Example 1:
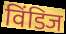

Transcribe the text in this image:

विंडिज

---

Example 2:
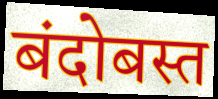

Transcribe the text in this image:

बंदोबस्त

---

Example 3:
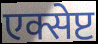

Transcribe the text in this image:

एक्सेप्ट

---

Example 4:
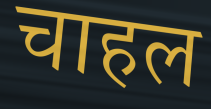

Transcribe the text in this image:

चाहल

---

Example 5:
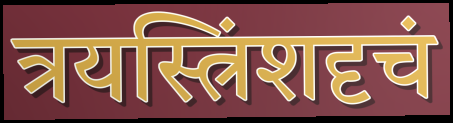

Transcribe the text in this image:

त्रयस्त्रिंशदृचं